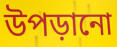
উপড়ানো